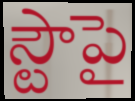
స్టౌపై